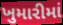
ખુમારીમાં